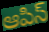
ఆపిస్